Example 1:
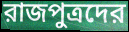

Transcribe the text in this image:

রাজপুত্রদের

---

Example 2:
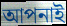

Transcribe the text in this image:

আপনাই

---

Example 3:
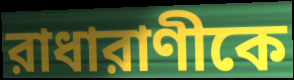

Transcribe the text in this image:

রাধারাণীকে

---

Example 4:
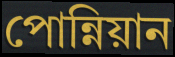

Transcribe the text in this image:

পোন্নিয়ান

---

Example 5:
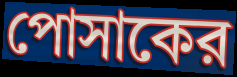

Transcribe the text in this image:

পোসাকের